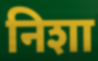
निशा